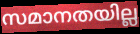
സമാനതയില്ല